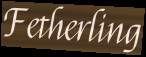
Fetherling